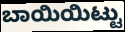
ಬಾಯಿಯಿಟ್ಟು